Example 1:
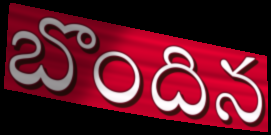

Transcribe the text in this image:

బొందిన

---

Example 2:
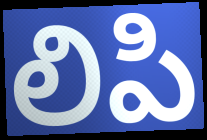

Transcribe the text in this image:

లిపి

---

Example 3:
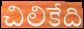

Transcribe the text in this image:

చిలికేది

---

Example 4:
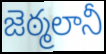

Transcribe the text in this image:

జెఠ్మలానీ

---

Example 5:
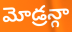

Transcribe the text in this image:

మోడ్రన్గా